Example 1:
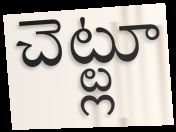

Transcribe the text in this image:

చెట్ట్లూ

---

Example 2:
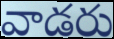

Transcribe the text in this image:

వాడరు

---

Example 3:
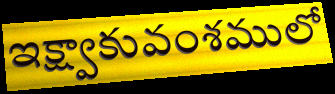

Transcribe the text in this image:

ఇక్ష్వాకువంశములో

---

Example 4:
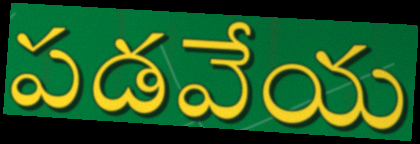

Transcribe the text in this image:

పడవేయ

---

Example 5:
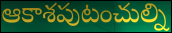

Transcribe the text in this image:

ఆకాశపుటంచుల్ని